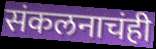
संकलनाचंही